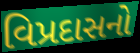
વિપ્રદાસનો